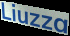
Liuzza